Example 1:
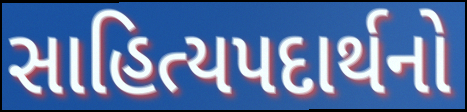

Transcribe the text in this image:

સાહિત્યપદાર્થનો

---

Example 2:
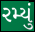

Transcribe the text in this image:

રમ્યું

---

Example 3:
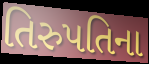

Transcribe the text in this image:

તિરુપતિના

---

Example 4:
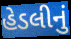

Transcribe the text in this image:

હેડલીનું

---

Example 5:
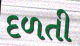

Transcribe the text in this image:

દળતી